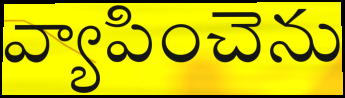
వ్యాపించెను